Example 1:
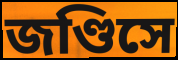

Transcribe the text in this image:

জণ্ডিসে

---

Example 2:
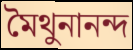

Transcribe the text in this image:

মৈথুনানন্দ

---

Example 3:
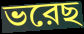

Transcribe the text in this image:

ভরেছ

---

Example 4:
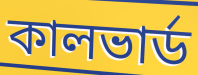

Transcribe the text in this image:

কালভার্ড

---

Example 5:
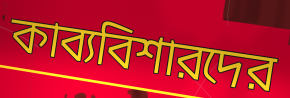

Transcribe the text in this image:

কাব্যবিশারদের